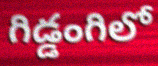
గిడ్డంగిలో